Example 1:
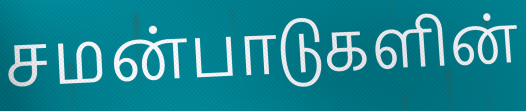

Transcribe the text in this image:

சமன்பாடுகளின்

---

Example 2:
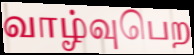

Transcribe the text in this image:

வாழ்வுபெற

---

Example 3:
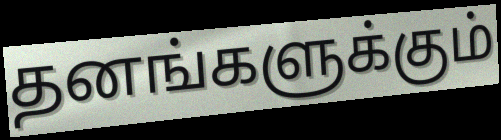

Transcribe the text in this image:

தனங்களுக்கும்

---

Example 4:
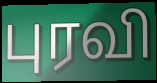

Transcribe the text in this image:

புரவி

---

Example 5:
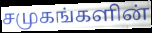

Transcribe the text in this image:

சமுகங்களின்